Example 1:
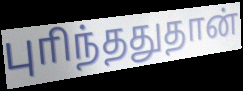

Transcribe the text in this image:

புரிந்ததுதான்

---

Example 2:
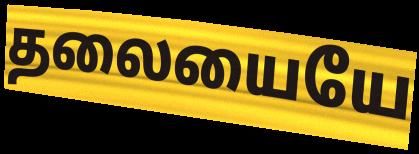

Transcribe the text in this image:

தலையையே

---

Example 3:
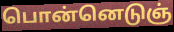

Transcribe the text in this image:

பொன்னெடுஞ்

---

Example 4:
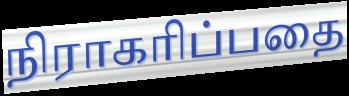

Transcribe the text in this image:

நிராகரிப்பதை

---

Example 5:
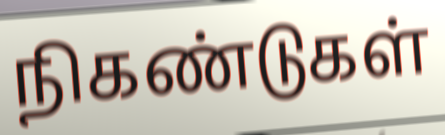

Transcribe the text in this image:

நிகண்டுகள்